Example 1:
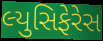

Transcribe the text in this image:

લ્યુસિફેરેસ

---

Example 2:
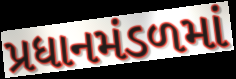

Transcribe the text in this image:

પ્રધાનમંડળમાં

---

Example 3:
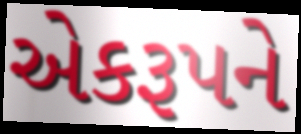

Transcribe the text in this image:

એકરૂપને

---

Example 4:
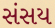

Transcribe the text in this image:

સંસય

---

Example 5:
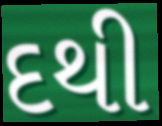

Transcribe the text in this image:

દથી